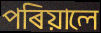
পৰিয়ালে